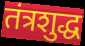
तंत्रशुद्ध